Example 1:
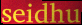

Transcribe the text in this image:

seidhu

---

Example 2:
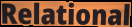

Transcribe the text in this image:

Relational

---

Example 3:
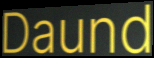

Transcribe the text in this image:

Daund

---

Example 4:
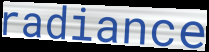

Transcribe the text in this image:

radiance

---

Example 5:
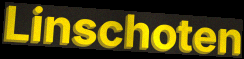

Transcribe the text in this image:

Linschoten